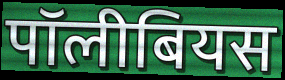
पॉलीबियस